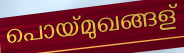
പൊയ്മുഖങ്ങള്